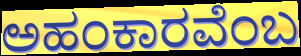
ಅಹಂಕಾರವೆಂಬ